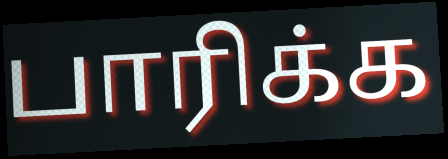
பாரிக்க